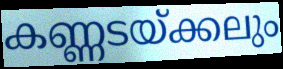
കണ്ണടയ്ക്കലും